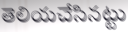
తెలియచేసినట్టు